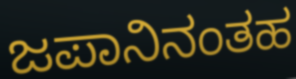
ಜಪಾನಿನಂತಹ